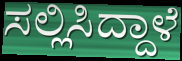
ಸಲ್ಲಿಸಿದ್ದಾಳೆ